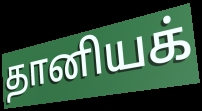
தானியக்